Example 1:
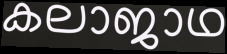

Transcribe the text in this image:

കലാജാഥ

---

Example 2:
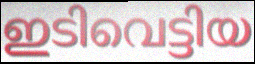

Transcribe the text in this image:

ഇടിവെട്ടിയ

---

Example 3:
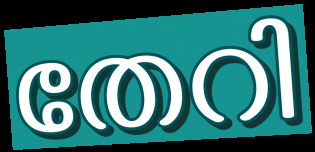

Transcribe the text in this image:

തേറി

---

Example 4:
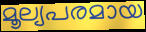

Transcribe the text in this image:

മൂല്യപരമായ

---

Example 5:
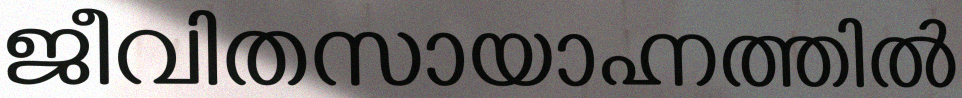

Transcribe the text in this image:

ജീവിതസായാഹ്നത്തിൽ